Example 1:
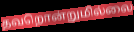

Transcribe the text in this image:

தவறொன்றுமில்லை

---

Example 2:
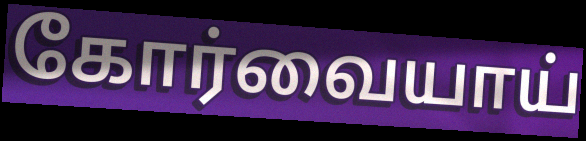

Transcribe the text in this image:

கோர்வையாய்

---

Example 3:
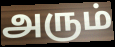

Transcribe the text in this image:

அரும்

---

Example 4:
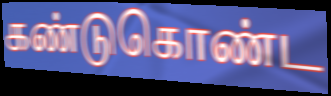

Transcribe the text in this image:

கண்டுகொண்ட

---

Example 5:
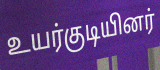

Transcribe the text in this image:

உயர்குடியினர்